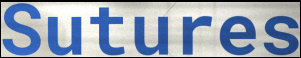
Sutures